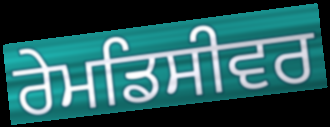
ਰੇਮਡਿਸੀਵਰ